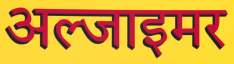
अल्जाइमर